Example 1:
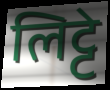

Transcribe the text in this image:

लिट्टे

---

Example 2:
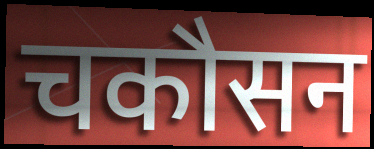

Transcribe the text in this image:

चकौसन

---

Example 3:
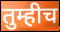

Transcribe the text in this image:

तुम्हीच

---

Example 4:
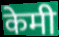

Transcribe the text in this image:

केमी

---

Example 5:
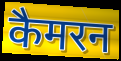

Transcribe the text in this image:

कैमरन